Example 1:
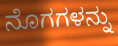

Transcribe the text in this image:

ನೊಗಗಳನ್ನು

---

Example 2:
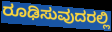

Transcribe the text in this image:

ರೂಢಿಸುವುದರಲ್ಲಿ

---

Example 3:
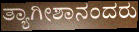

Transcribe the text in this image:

ತ್ಯಾಗೀಶಾನಂದರು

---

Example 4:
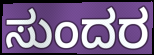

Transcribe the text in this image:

ಸುಂದರ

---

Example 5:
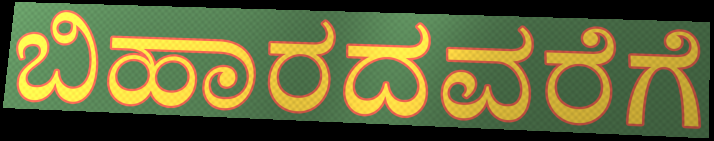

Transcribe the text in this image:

ಬಿಹಾರದವರೆಗೆ